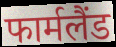
फार्मलैंड